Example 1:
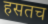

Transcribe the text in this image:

हसतच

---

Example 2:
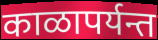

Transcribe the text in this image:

काळापर्यन्त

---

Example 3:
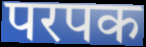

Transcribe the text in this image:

परपक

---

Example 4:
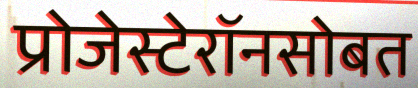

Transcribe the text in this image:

प्रोजेस्टेरॉनसोबत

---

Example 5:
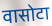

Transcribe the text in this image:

वासोटा